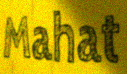
Mahat